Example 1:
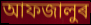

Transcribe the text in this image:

আফজালুৰ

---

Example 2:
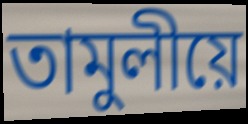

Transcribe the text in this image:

তামুলীয়ে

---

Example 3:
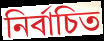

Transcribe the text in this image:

নিৰ্বাচিত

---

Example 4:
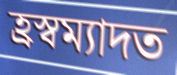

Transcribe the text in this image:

হ্ৰস্বম্যাদত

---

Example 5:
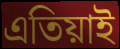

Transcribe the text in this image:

এতিয়াই